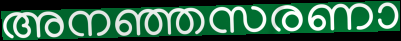
അനഞ്ഞസരണാ